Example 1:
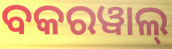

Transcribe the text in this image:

ବକରୱାଲ୍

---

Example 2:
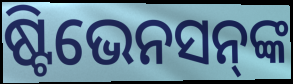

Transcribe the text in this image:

ଷ୍ଟିଭେନସନ୍‍ଙ୍କ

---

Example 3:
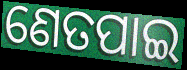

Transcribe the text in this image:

ଣେତପାଇ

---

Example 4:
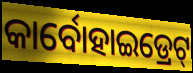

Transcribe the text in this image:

କାର୍ବୋହାଇଡ୍ରେଟ୍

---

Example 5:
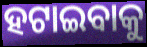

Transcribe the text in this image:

ହଟାଇବାକୁ